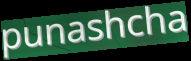
punashcha